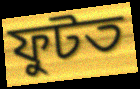
ফুটত